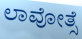
ಲಾವೋತ್ಸೆ